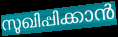
സുഖിപ്പിക്കാൻ